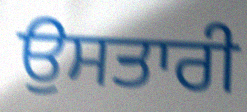
ਉਸਤਾਰੀ